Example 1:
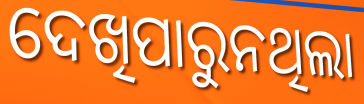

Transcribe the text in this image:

ଦେଖିପାରୁନଥିଲା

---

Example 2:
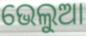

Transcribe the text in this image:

ଭେଲୁଆ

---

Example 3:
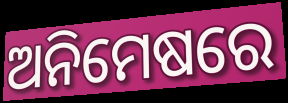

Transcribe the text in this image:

ଅନିମେଷରେ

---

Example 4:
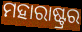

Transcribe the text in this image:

ମହାରାଷ୍ଟ୍ରର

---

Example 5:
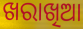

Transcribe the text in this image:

ଖରାଖିଆ